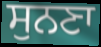
ਸੁਨਣਾ